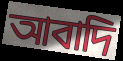
আবাদি